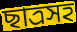
ছাত্রসহ